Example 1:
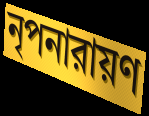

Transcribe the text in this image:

নৃপনারায়ণ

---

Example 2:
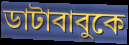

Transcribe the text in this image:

ডাটাবাবুকে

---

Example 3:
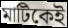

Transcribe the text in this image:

মাটিকেই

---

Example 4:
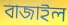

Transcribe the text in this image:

বাজাইল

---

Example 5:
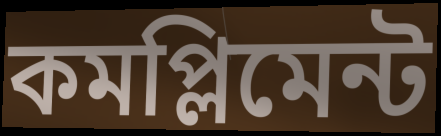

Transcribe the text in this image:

কমপ্লিমেন্ট